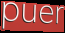
puer